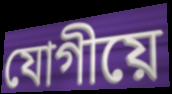
যোগীয়ে